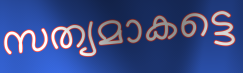
സത്യമാകട്ടെ